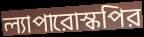
ল্যাপারোস্কপির